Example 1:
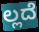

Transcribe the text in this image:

ಲ್ಲದೆ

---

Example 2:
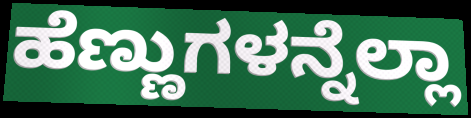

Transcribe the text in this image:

ಹೆಣ್ಣುಗಳನ್ನೆಲ್ಲಾ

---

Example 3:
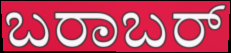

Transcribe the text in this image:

ಬರಾಬರ್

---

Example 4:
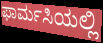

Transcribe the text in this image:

ಫಾರ್ಮಸಿಯಲ್ಲಿ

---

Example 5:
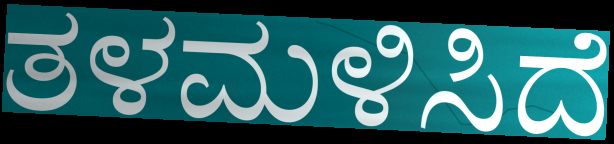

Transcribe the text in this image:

ತಳಮಳಿಸಿದೆ